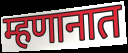
म्हणानात